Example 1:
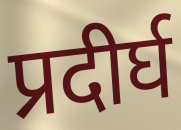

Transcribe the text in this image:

प्रदीर्घ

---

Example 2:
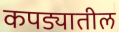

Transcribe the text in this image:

कपड्यातील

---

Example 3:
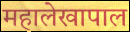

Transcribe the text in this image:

महालेखापाल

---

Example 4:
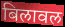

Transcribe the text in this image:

बिलावल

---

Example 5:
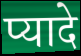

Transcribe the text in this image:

प्यादे